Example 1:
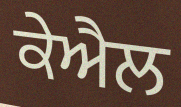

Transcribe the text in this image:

ਕੇਐਲ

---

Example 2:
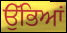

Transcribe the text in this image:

ਉੱਭਿਆਂ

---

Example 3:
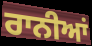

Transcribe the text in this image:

ਰਾਨੀਆਂ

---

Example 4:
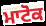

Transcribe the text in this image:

ਮਾਟੋਕ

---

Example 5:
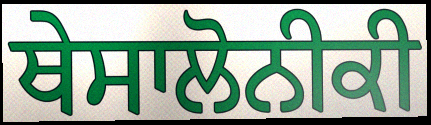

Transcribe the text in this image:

ਥੇਸਾਲੋਨੀਕੀ